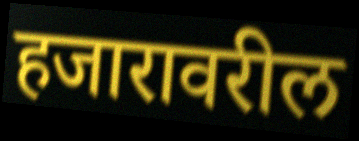
हजारावरील